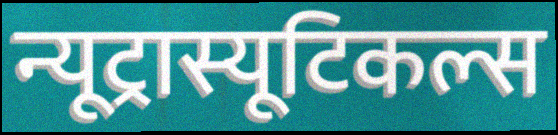
न्यूट्रास्यूटिकल्स